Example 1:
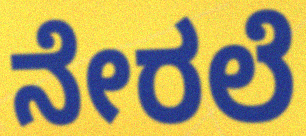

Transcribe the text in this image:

ನೇರಲೆ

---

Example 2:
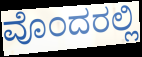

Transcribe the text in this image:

ವೊಂದರಲ್ಲಿ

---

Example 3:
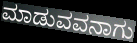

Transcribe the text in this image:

ಮಾಡುವವನಾಗು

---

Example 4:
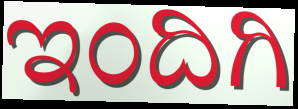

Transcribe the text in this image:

ಇಂದಿಗಿ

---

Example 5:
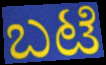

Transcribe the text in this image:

ಬಟೆ